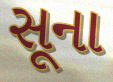
સૂના